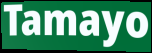
Tamayo